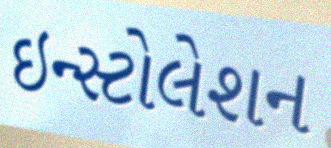
ઇન્સ્ટોલેશન